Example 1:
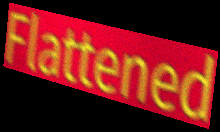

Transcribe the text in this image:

Flattened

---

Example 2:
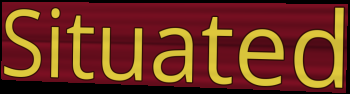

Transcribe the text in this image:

Situated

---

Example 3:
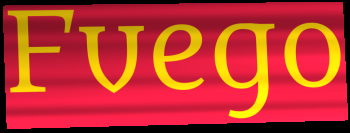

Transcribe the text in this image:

Fuego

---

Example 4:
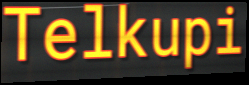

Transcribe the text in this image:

Telkupi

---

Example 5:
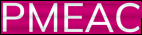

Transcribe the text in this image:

PMEAC